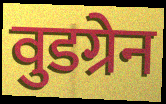
वुडग्रेन